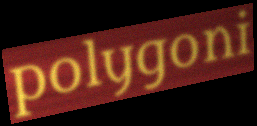
polygoni